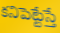
కనిపెట్టేస్తే